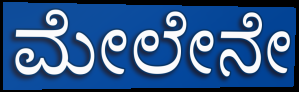
ಮೇಲೇನೇ